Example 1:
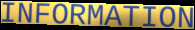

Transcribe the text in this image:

INFORMATION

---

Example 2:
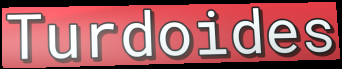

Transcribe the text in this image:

Turdoides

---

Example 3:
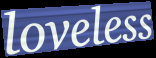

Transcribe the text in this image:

loveless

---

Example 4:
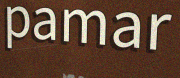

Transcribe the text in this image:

pamar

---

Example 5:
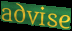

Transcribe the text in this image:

advise